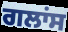
ਗਲਾਂਸ